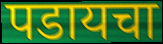
पडायचा